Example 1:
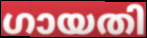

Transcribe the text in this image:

ഗായതി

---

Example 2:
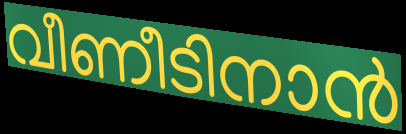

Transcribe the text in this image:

വീണീടിനാൻ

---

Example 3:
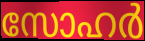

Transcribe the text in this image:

സോഹർ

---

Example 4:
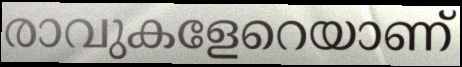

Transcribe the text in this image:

രാവുകളേറെയാണ്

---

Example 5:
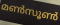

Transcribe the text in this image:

മൺസൂൺ